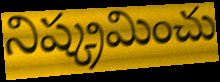
నిష్క్రమించు